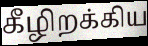
கீழிறக்கிய